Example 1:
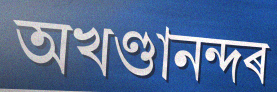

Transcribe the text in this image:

অখণ্ডানন্দৰ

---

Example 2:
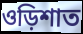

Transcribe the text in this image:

ওড়িশাত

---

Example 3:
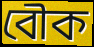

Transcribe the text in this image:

বৌক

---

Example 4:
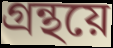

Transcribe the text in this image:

গ্ৰন্থয়ে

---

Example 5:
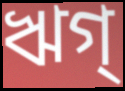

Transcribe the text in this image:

ঋগ্